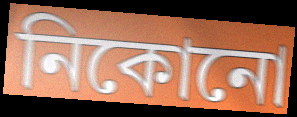
নিকোনো